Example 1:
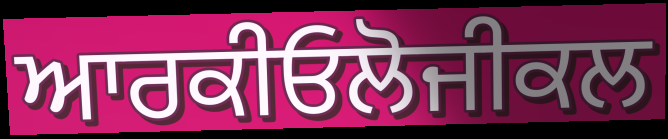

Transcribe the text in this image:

ਆਰਕੀਓਲੋਜੀਕਲ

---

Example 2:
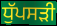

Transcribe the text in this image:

ਧੁੱਪਸੜੀ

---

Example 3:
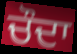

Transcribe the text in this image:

ਚੌਦਾ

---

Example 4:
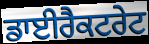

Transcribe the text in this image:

ਡਾਈਰੈਕਟਰੇਟ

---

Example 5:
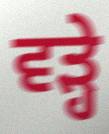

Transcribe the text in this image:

ਵੜ੍ਹੇ